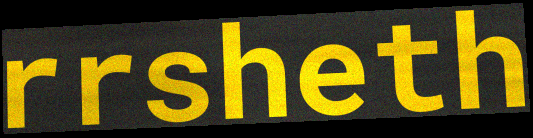
rrsheth